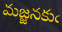
మజ్జనకుఁ